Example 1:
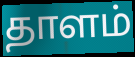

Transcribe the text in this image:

தாளம்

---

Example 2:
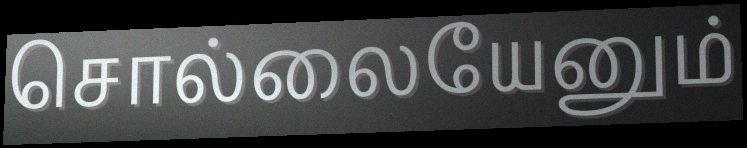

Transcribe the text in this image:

சொல்லையேனும்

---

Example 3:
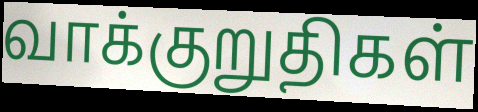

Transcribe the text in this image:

வாக்குறுதிகள்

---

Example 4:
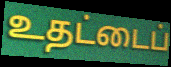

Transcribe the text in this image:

உதட்டைப்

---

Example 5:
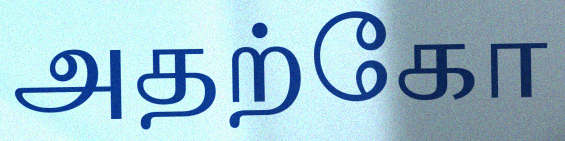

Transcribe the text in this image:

அதற்கோ